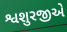
શ્વશુરજીએ